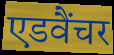
एडवैंचर